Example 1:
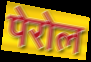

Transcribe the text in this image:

पेरोल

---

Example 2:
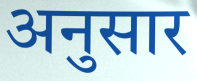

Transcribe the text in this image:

अनुसार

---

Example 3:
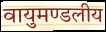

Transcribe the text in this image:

वायुमण्डलीय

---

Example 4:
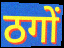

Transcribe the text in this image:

ठगों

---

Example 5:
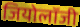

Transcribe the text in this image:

जियोलॉजी